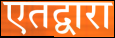
एतद्वारा